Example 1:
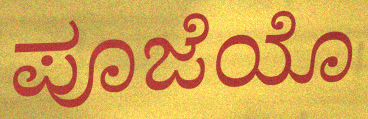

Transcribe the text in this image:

ಪೂಜೆಯೊ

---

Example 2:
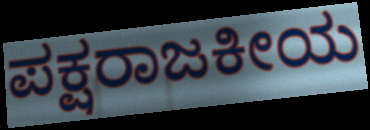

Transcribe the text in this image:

ಪಕ್ಷರಾಜಕೀಯ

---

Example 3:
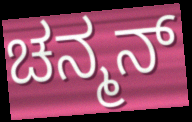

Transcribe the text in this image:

ಚನ್ಮನ್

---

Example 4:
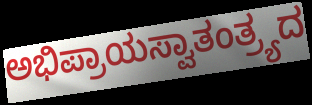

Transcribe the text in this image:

ಅಭಿಪ್ರಾಯಸ್ವಾತಂತ್ರ್ಯದ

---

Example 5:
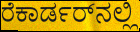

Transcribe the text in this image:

ರೆಕಾರ್ಡರ್‌ನಲ್ಲಿ